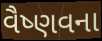
વૈષ્ણવના